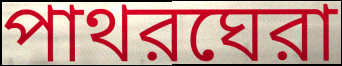
পাথরঘেরা